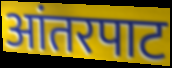
आंतरपाट